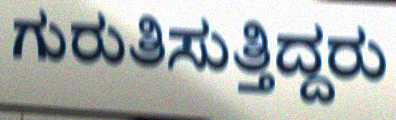
ಗುರುತಿಸುತ್ತಿದ್ದರು